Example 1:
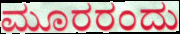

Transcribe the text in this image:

ಮೂರರಂದು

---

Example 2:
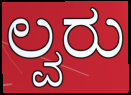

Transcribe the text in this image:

ಲ್ವರು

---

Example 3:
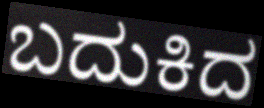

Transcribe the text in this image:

ಬದುಕಿದ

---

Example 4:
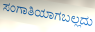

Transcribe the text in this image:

ಸಂಗಾತಿಯಾಗಬಲ್ಲದು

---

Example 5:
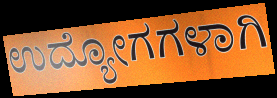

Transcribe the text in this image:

ಉದ್ಯೋಗಗಳಾಗಿ